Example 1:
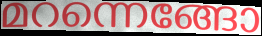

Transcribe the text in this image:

മറന്നെങ്ങോ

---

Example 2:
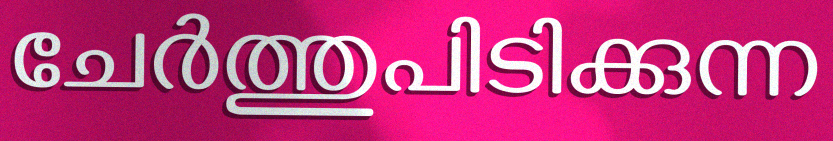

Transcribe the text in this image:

ചേർത്തുപിടിക്കുന്ന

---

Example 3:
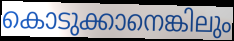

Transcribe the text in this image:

കൊടുക്കാനെങ്കിലും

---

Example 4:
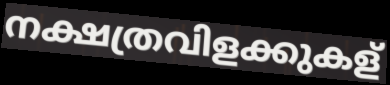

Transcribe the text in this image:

നക്ഷത്രവിളക്കുകള്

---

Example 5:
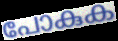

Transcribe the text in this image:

പോകുക